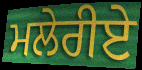
ਮਲੇਰੀਏ